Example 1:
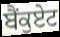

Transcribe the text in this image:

ਬੈਂਕੁਏਟ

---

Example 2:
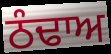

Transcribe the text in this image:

ਠੰਢਾਅ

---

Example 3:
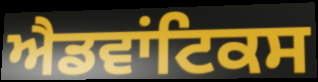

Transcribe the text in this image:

ਐਡਵਾਂਟਿਕਸ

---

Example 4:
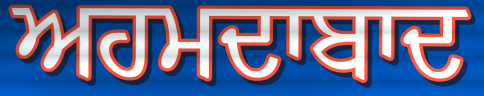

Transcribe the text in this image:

ਅਹਮਦਾਬਾਦ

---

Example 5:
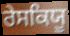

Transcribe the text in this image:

ਰੇਸਕਿਯੂ